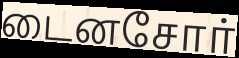
டைனசோர்